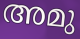
അമു